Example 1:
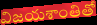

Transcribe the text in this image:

విజయశాంతితో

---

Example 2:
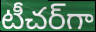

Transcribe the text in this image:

టీచర్‌గా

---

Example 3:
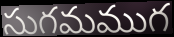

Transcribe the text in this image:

సుగమముగ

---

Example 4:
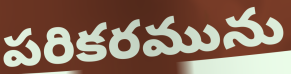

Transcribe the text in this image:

పరికరమును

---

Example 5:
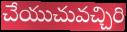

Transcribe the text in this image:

చేయుచువచ్చిరి